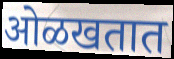
ओळखतात